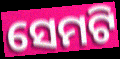
ସେମଟି